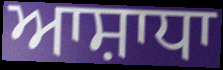
ਆਸ਼ਾਧਾ